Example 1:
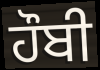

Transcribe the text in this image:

ਹੌਬੀ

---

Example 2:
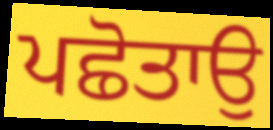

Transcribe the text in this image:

ਪਛੋਤਾਉ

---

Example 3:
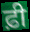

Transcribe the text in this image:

ਫ਼ੀ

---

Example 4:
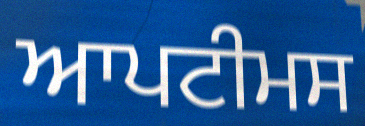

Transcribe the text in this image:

ਆਪਟੀਮਸ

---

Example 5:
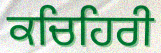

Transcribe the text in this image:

ਕਚਿਹਿਰੀ